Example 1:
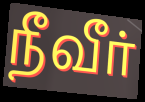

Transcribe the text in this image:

நீவீர்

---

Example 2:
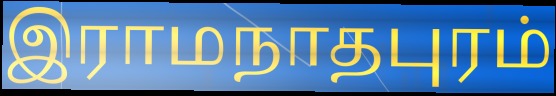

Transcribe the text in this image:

இராமநாதபுரம்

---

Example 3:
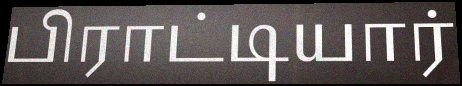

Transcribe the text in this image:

பிராட்டியார்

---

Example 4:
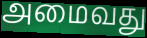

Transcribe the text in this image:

அமைவது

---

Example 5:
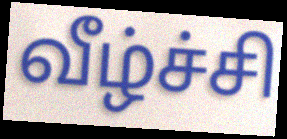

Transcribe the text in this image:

வீழ்ச்சி